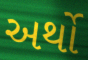
અર્થો